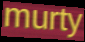
murty